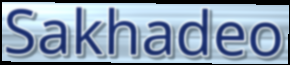
Sakhadeo